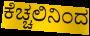
ಕೆಚ್ಚಲಿನಿಂದ